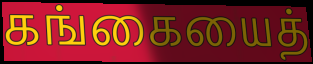
கங்கையைத்